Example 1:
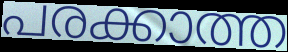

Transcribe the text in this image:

പരക്കാത്ത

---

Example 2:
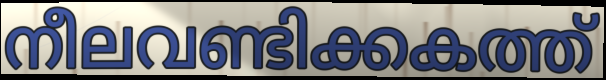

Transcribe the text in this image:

നീലവണ്ടിക്കകത്ത്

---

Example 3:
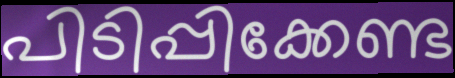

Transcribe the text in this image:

പിടിപ്പിക്കേണ്ട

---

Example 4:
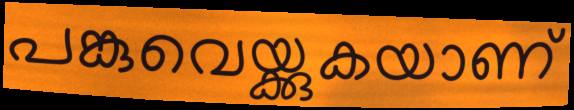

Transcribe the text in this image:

പങ്കുവെയ്ക്കുകയാണ്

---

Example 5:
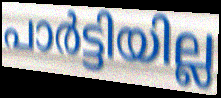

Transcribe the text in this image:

പാർട്ടിയില്ല